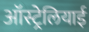
ऑस्ट्रेलियाई